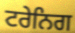
ਟਰੇਨਿਗ